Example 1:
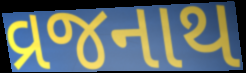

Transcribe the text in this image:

વ્રજનાથ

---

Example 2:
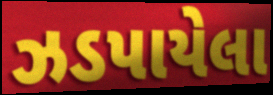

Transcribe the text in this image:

ઝડપાયેલા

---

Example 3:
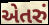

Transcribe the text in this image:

એતરું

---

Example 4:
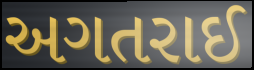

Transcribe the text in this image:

અગતરાઈ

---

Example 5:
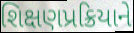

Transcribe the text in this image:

શિક્ષણપ્રક્રિયાને